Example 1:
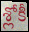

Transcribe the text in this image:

శ్లోకీ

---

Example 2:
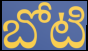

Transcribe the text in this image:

బోటి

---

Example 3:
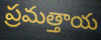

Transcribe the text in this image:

ప్రమత్తాయ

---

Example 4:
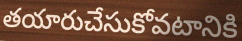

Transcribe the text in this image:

తయారుచేసుకోవటానికి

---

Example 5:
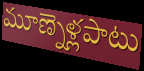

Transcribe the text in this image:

మూణ్నెళ్లపాటు